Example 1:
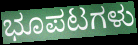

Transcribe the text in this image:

ಭೂಪಟಗಳು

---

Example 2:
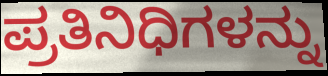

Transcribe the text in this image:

ಪ್ರತಿನಿಧಿಗಳನ್ನು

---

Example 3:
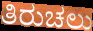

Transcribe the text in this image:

ತಿರುಚಲು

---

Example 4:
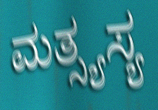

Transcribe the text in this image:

ಮತ್ಸ್ಯಸ್ಯ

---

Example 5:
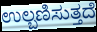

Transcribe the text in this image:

ಉಲ್ಬಣಿಸುತ್ತದೆ